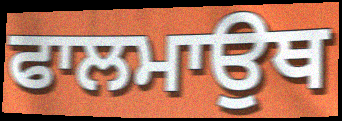
ਫਾਲਮਾਉਥ